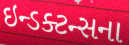
ઇન્ડક્ટન્સના